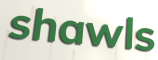
shawls